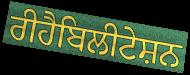
ਰੀਹੈਬਿਲੀਟੇਸ਼ਨ